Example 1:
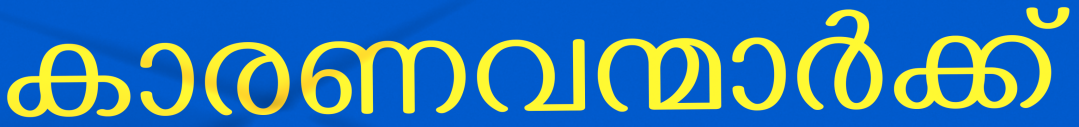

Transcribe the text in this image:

കാരണവന്മാർക്ക്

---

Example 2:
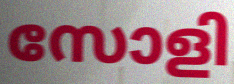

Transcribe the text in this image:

സോളി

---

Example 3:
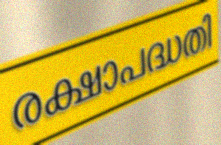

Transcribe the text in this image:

രക്ഷാപദ്ധതി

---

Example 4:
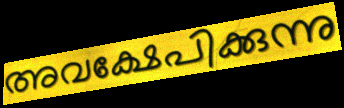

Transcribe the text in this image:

അവക്ഷേപിക്കുന്നു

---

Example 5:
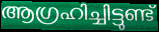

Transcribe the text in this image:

ആഗ്രഹിച്ചിട്ടുണ്ട്